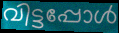
വിട്ടപ്പോൾ